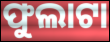
ଫୁଲାଟା